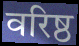
वरिष्ठ